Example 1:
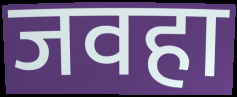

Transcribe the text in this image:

जवहा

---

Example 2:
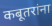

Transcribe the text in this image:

कबूतरांना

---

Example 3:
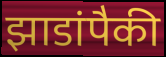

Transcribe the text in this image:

झाडांपैकी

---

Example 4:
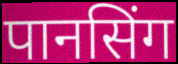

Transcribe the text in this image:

पानसिंग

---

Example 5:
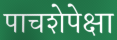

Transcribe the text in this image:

पाचशेपेक्षा